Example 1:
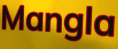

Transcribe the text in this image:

Mangla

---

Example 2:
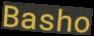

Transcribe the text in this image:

Basho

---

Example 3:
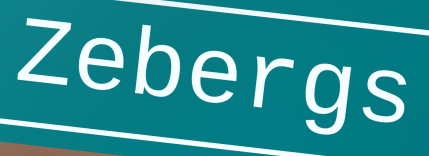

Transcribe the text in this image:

Zebergs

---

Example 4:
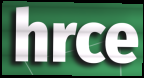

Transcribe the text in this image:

hrce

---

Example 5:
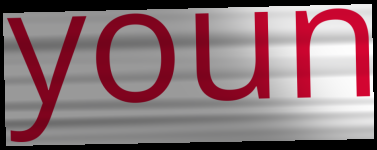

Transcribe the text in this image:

youn